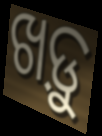
ଖଡ଼ୁ